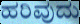
ಹರಿವುದು